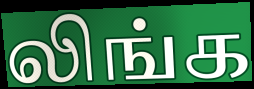
லிங்க